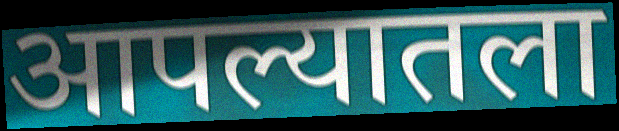
आपल्यातला